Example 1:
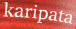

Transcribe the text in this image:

karipata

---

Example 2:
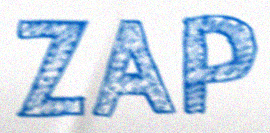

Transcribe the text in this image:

ZAP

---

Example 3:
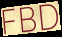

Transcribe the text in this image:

FBD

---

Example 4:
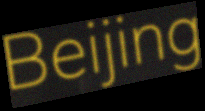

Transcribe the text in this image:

Beijing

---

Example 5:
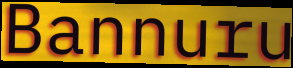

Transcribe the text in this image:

Bannuru